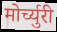
मोर्च्युरी